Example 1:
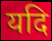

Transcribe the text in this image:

यदि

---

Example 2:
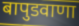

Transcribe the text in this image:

बापुडवाणा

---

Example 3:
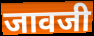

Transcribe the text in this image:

जावजी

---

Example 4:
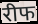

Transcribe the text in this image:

रीफ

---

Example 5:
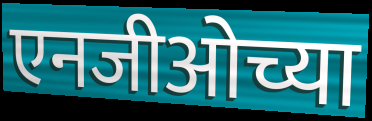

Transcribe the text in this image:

एनजीओच्या